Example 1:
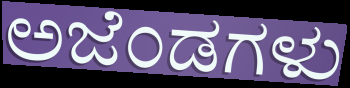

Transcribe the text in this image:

ಅಜೆಂಡಗಳು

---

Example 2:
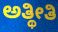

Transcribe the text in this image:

ಅತ್ಥೀತಿ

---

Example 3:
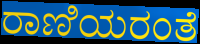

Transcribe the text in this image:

ರಾಣಿಯರಂತೆ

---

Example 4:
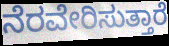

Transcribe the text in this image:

ನೆರವೇರಿಸುತ್ತಾರೆ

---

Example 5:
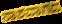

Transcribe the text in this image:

ನಾಶವಾಗದ